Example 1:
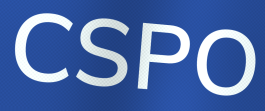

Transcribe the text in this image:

CSPO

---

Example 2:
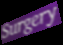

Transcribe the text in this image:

Surgery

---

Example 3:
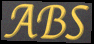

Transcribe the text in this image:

ABS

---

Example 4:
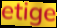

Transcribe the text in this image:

etige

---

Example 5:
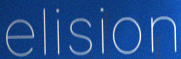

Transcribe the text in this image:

elision